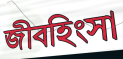
জীবহিংসা